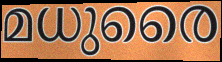
മധുരൈ